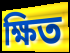
ক্ষিত